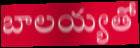
బాలయ్యతో